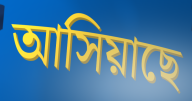
আসিয়াছে